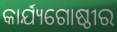
କାର୍ଯ୍ୟଗୋଷ୍ଠୀର